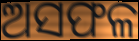
ଅସଫଳ